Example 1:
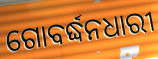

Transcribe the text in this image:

ଗୋବର୍ଦ୍ଧନଧାରୀ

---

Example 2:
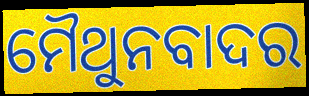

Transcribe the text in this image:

ମୈଥୁନବାଦର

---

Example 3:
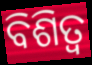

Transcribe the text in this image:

ବିଶିତ୍ଵ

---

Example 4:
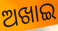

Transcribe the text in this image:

ଅଖାଇ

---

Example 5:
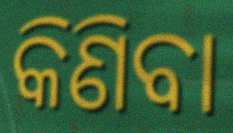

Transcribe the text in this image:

କିଣିବା